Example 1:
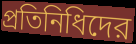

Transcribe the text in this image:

প্রতিনিধিদের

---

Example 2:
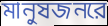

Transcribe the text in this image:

মানুষজনরে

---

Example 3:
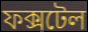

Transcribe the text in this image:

ফক্সটেল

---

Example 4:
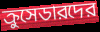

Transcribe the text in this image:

ক্রুসেডারদের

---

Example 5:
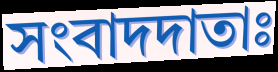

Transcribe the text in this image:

সংবাদদাতাঃ